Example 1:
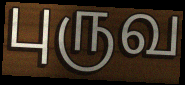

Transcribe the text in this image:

புருவ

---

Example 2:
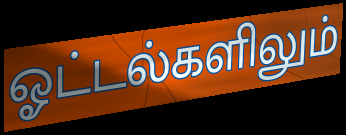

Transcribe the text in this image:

ஓட்டல்களிலும்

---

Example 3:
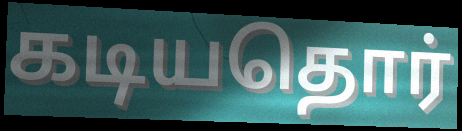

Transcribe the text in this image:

கடியதொர்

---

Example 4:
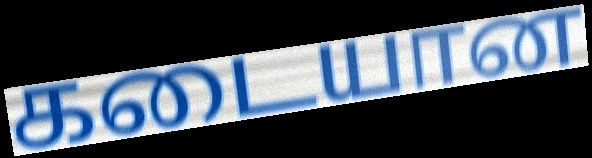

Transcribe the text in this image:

கடையான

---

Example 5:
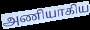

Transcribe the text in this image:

அணியாகிய